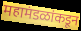
महामंडळांकडून